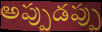
అప్పుడప్పు